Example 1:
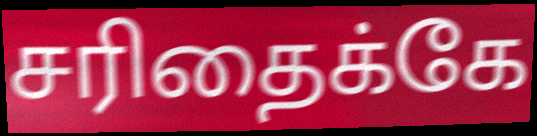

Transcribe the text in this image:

சரிதைக்கே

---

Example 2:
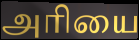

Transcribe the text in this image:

அரியை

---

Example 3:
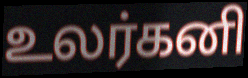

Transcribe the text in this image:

உலர்கனி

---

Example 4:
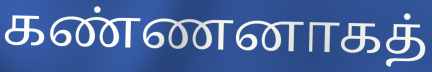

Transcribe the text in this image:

கண்ணனாகத்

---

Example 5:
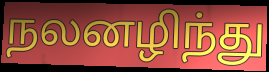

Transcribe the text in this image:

நலனழிந்து